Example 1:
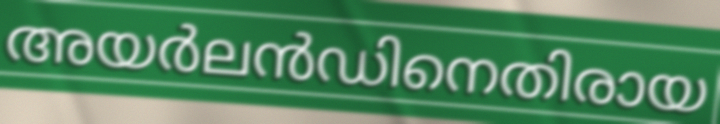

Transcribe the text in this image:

അയർലൻഡിനെതിരായ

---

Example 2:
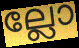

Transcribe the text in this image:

ല്ലോ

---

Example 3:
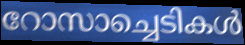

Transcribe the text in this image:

റോസാച്ചെടികൾ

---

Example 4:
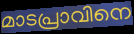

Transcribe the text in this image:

മാടപ്രാവിനെ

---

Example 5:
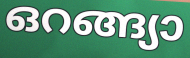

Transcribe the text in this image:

ഒറങ്ങ്യാ